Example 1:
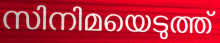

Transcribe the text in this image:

സിനിമയെടുത്ത്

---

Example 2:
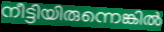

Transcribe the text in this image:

നീട്ടിയിരുന്നെങ്കിൽ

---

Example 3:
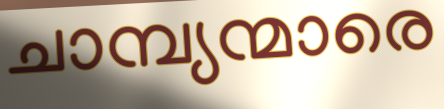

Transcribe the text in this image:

ചാമ്പ്യന്മാരെ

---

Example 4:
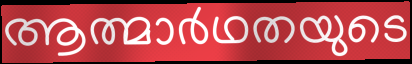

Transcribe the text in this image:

ആത്മാർഥതയുടെ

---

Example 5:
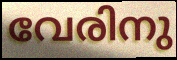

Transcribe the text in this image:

വേരിനു